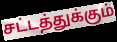
சட்டத்துக்கும்